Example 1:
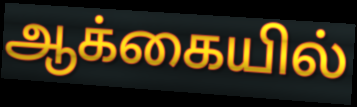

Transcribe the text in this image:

ஆக்கையில்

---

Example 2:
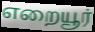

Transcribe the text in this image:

எறையூர்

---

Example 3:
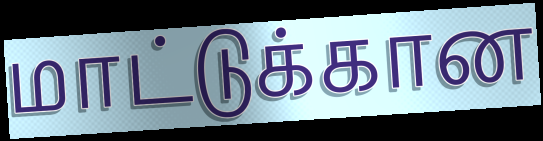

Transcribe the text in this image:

மாட்டுக்கான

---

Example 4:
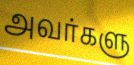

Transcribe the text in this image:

அவர்களு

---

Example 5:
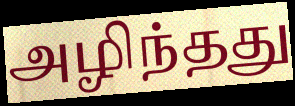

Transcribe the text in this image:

அழிந்தது